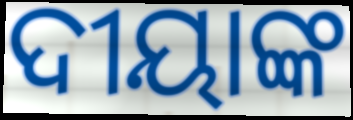
ଦୀୟାଙ୍କ